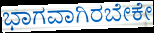
ಭಾಗವಾಗಿರಬೇಕೇ